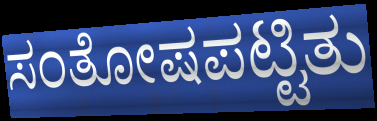
ಸಂತೋಷಪಟ್ಟಿತು